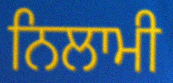
ਨਿਲਾਮੀ